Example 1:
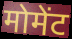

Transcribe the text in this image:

मोमेंट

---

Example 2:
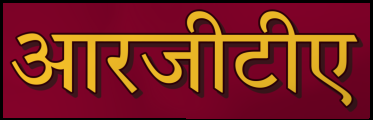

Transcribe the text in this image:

आरजीटीए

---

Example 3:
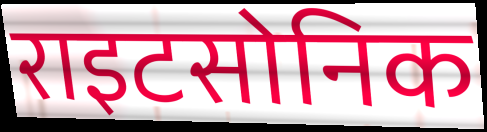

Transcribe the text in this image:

राइटसोनिक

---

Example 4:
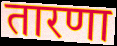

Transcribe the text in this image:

तारणा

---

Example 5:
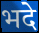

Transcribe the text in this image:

भदे